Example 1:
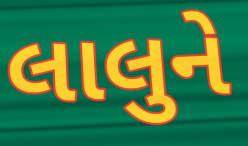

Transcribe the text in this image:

લાલુને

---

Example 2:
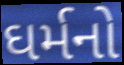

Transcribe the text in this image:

ઘર્મનો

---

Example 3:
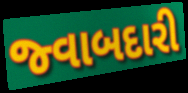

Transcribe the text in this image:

જ્વાબદારી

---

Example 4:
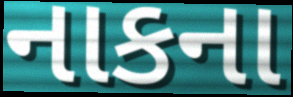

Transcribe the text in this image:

નાકના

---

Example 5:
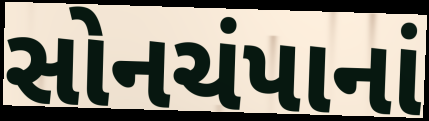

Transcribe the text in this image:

સોનચંપાનાં